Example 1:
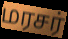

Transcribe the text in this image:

மரசர்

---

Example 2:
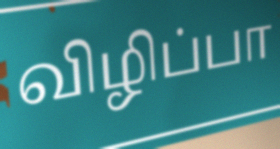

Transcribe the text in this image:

விழிப்பா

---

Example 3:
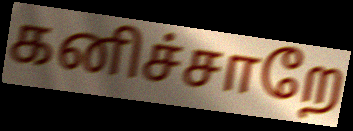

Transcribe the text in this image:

கனிச்சாறே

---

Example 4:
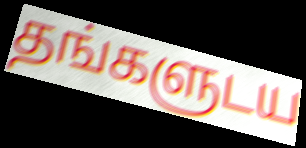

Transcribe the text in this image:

தங்களுடய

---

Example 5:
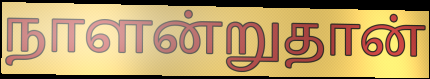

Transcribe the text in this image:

நாளன்றுதான்